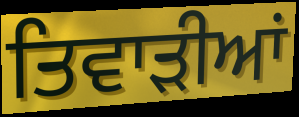
ਤਿਵਾੜੀਆਂ